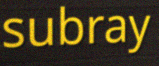
subray